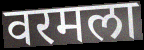
वरमला